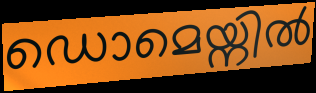
ഡൊമെയ്നിൽ